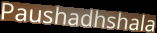
Paushadhshala